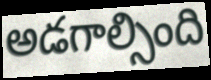
అడగాల్సింది